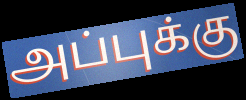
அப்புக்கு